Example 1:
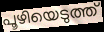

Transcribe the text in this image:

പൂഴിയെടുത്ത്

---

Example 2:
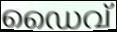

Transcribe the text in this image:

ഡൈവ്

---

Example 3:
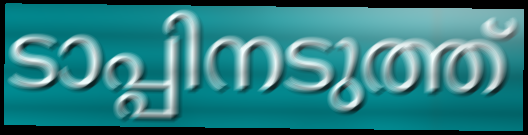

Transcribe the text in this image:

ടാപ്പിനടുത്ത്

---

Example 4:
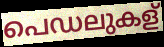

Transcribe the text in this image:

പെഡലുകള്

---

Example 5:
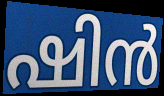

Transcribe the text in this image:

ഷിൻ